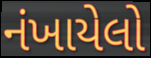
નંખાયેલો